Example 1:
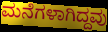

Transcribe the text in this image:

ಮನೆಗಳಾಗಿದ್ದವು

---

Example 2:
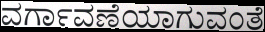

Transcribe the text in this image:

ವರ್ಗಾವಣೆಯಾಗುವಂತೆ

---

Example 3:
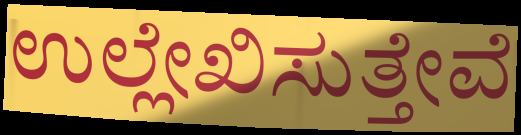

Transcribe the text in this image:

ಉಲ್ಲೇಖಿಸುತ್ತೇವೆ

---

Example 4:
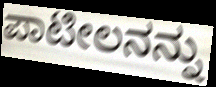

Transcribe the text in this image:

ಪಾಟೀಲನನ್ನು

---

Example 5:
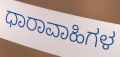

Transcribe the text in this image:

ಧಾರಾವಾಹಿಗಳ